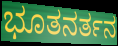
ಭೂತನರ್ತನ